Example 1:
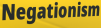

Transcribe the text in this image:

Negationism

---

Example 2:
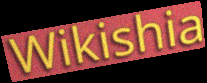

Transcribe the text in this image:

Wikishia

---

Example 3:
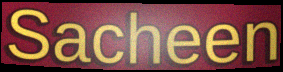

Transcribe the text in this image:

Sacheen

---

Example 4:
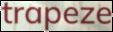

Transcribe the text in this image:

trapeze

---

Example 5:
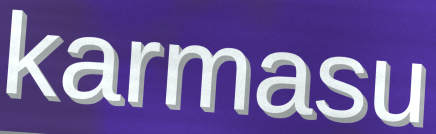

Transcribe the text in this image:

karmasu